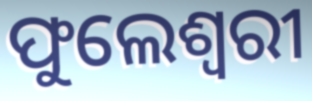
ଫୁଲେଶ୍ବରୀ